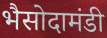
भैसोदामंडी